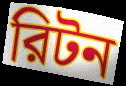
রিটন